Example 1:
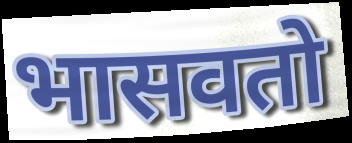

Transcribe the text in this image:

भासवतो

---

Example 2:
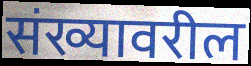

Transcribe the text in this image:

संख्यावरील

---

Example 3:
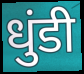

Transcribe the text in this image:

धुंडी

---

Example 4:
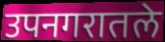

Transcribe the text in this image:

उपनगरातले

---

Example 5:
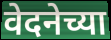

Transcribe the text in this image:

वेदनेच्या